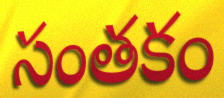
సంతకం